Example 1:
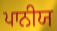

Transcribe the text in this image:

ਪਾਨੀਯ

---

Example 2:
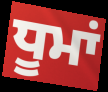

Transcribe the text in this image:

ਧੂਮਾਂ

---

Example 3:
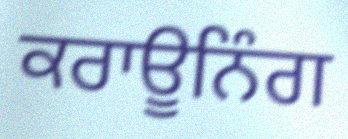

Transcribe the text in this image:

ਕਰਾਊਨਿੰਗ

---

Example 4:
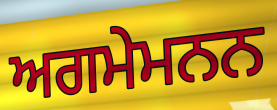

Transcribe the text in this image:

ਅਗਮੇਮਨਨ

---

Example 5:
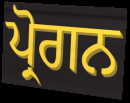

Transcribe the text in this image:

ਪ੍ਰੋਗਨ